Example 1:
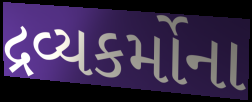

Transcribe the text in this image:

દ્રવ્યકર્મોના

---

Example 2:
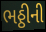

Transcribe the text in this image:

ભઠ્ઠીની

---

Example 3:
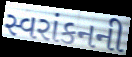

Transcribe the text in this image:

સ્વરાંકનની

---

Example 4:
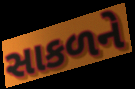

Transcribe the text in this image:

સાકળને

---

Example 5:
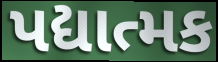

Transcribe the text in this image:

પદ્યાત્મક